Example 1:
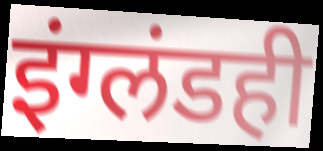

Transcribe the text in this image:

इंग्लंडही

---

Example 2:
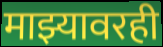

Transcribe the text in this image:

माझ्यावरही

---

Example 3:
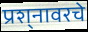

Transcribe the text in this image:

प्रश्नावरचे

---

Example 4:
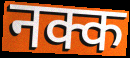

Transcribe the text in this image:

नक्क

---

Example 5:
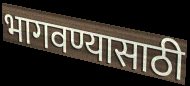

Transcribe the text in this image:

भागवण्यासाठी